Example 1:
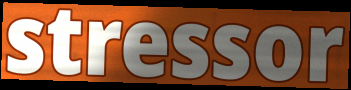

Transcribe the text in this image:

stressor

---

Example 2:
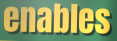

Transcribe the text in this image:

enables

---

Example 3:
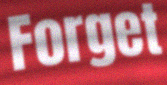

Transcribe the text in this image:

Forget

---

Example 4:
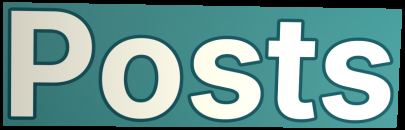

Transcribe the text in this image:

Posts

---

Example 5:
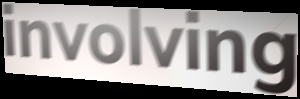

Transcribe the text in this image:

involving